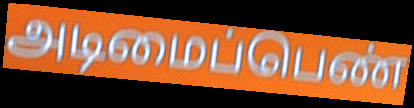
அடிமைப்பெண்